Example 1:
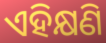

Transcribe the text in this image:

ଏହିକ୍ଷଣି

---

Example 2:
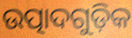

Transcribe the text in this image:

ଉତ୍ପାଦଗୁଡ଼ିକ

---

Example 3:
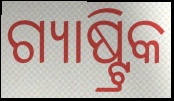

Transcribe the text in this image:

ଗ୍ୟାଷ୍ଟ୍ରିକ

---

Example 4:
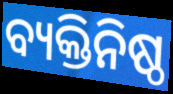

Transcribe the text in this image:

ବ୍ୟକ୍ତିନିଷ୍ଠ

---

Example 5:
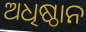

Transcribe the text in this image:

ଅଧିଷ୍ଠାନ